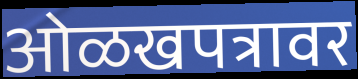
ओळखपत्रावर